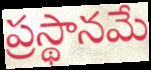
ప్రస్థానమే